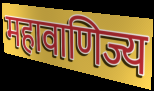
महावाणिज्य